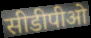
सीडीपीओ